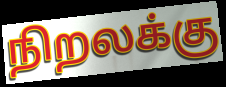
நிறலக்கு